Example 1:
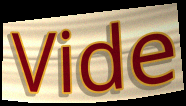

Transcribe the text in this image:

Vide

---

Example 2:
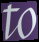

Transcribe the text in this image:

to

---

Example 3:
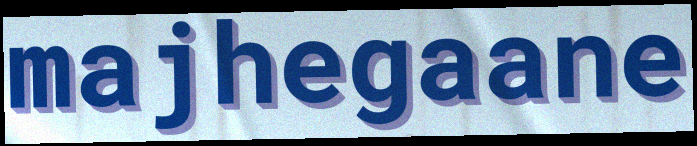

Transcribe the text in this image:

majhegaane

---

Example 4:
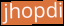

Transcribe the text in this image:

jhopdi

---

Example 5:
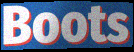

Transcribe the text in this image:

Boots